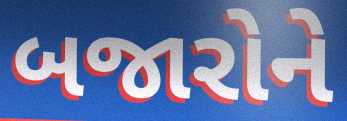
બજારોને